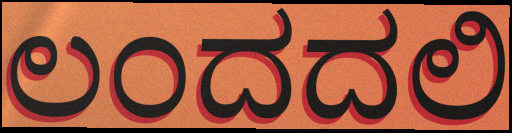
ಲಂದದಲಿ